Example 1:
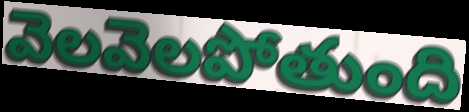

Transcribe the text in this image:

వెలవెలపోతుంది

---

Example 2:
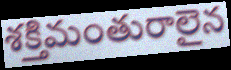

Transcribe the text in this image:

శక్తిమంతురాలైన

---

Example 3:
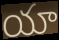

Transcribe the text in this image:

యా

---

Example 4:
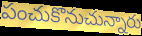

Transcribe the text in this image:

పంచుకొనుచున్నారు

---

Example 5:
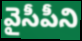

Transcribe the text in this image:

వైసీపీని